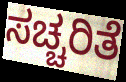
ಸಚ್ಚರಿತೆ